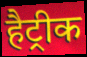
हैट्रीक